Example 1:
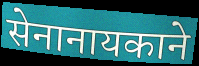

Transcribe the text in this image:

सेनानायकाने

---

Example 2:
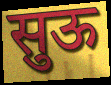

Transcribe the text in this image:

सुऊ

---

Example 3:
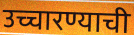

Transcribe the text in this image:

उच्चारण्याची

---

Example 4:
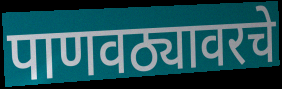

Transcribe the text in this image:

पाणवठ्यावरचे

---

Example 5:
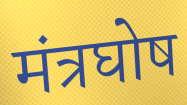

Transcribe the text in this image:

मंत्रघोष